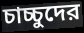
চাচ্চুদের